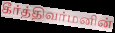
கீர்த்திவர்மனின்